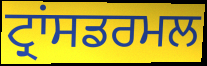
ਟ੍ਰਾਂਸਡਰਮਲ